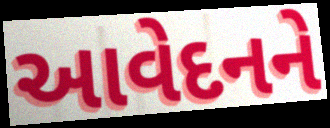
આવેદનને